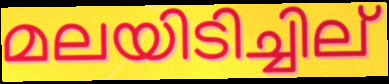
മലയിടിച്ചില്